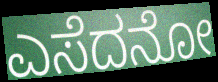
ಎಸೆದನೋ